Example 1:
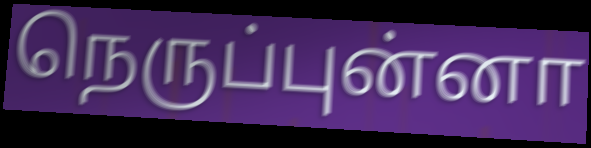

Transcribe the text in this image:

நெருப்புன்னா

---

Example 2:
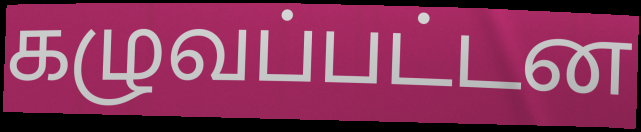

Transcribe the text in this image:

கழுவப்பட்டன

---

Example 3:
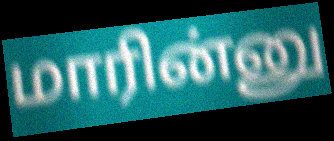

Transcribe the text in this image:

மாரின்னு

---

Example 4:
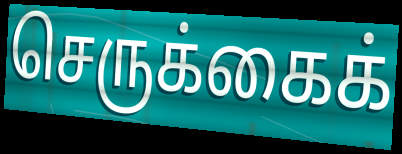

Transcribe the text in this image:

செருக்கைக்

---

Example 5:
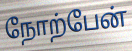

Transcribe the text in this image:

நோற்பேன்